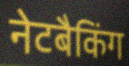
नेटबैकिंग